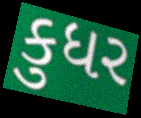
કુધર